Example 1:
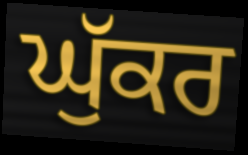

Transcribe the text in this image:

ਘੁੱਕਰ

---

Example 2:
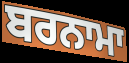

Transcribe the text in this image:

ਬਰਨਾਮਾ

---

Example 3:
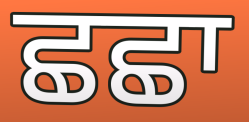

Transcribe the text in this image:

ਛਛਾ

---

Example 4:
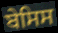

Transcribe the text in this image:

ਬੇਸਿਸ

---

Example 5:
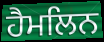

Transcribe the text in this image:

ਹੈਮਲਿਨ